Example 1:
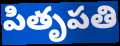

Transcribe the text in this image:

పితృపతి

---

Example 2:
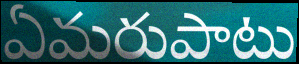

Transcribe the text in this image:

ఏమరుపాటు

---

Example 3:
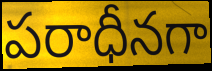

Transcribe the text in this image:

పరాధీనగా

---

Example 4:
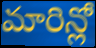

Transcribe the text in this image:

మారిన్లో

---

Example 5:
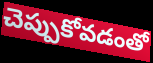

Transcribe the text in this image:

చెప్పుకోవడంతో